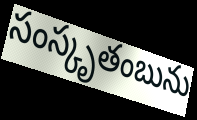
సంస్కృతంబును